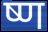
ष्ण